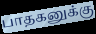
பாதகனுக்கு